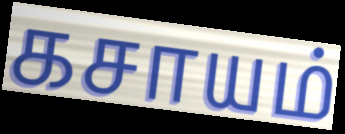
கசாயம்